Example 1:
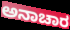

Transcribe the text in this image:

ಅನಾಚಾರ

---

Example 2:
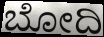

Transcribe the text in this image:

ಬೋದಿ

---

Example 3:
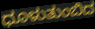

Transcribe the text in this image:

ಧೂಳುತುಂಬಿದ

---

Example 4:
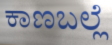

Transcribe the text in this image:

ಕಾಣಬಲ್ಲೆ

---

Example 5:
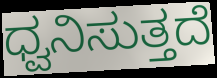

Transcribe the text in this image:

ಧ್ವನಿಸುತ್ತದೆ